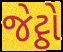
જેટ્ઠો